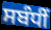
ਸਬੰਧੀਂ